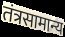
तंत्रसामान्य